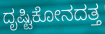
ದೃಷ್ಟಿಕೋನದತ್ತ